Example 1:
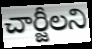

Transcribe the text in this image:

చార్జీలని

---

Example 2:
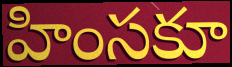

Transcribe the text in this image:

హింసకూ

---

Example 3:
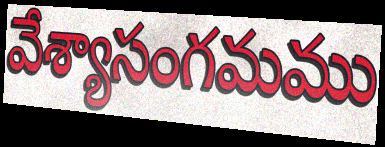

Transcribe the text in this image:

వేశ్యాసంగమము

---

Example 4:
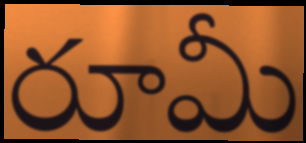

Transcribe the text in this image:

రూమీ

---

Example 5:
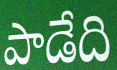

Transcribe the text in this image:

పాడేది